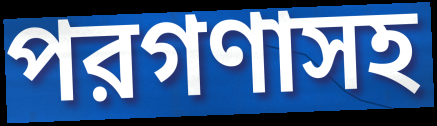
পরগণাসহ